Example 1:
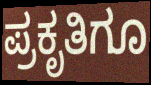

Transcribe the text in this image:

ಪ್ರಕೃತಿಗೂ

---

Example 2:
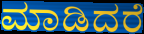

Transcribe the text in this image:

ಮಾಡಿದರೆ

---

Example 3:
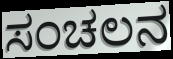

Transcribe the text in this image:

ಸಂಚಲನ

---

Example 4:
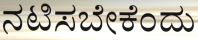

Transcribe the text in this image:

ನಟಿಸಬೇಕೆಂದು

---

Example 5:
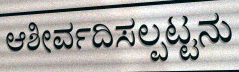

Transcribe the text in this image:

ಆಶೀರ್ವದಿಸಲ್ಪಟ್ಟನು